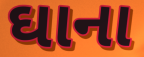
ઘાના